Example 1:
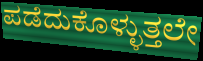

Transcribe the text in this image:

ಪಡೆದುಕೊಳ್ಳುತ್ತಲೇ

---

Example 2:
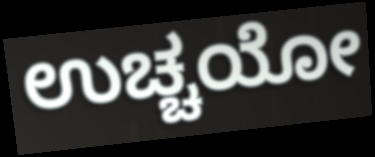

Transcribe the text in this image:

ಉಚ್ಚಯೋ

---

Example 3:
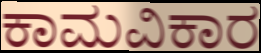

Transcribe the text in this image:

ಕಾಮವಿಕಾರ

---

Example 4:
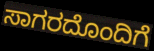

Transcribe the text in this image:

ಸಾಗರದೊಂದಿಗೆ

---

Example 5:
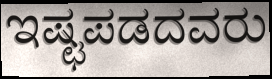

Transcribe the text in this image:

ಇಷ್ಟಪಡದವರು